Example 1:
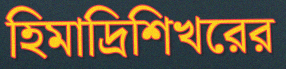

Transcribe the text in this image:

হিমাদ্রিশিখরের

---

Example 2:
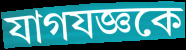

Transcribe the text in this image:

যাগযজ্ঞকে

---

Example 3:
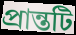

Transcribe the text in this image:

প্রান্তটি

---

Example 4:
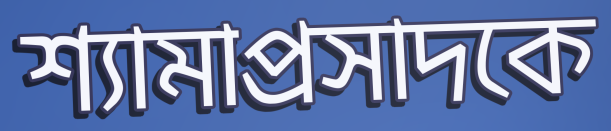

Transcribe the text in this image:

শ্যামাপ্রসাদকে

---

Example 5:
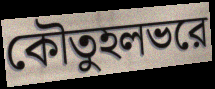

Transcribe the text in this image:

কৌতুহলভরে